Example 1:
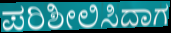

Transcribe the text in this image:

ಪರಿಶೀಲಿಸಿದಾಗ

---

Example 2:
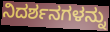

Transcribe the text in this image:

ನಿದರ್ಶನಗಳನ್ನು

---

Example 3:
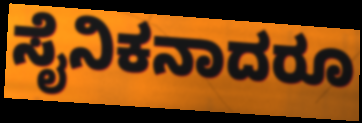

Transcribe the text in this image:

ಸೈನಿಕನಾದರೂ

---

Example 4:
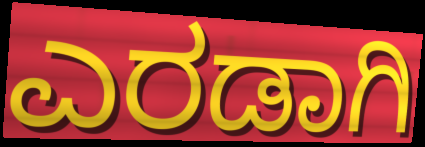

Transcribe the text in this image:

ಎರಡಾಗಿ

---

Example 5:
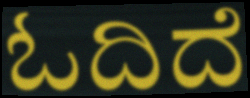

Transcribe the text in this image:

ಓದಿದೆ